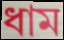
ধাম